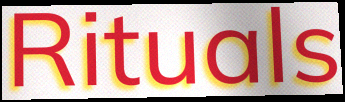
Rituals